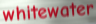
whitewater